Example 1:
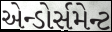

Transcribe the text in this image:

એન્ડોર્સમેન્ટ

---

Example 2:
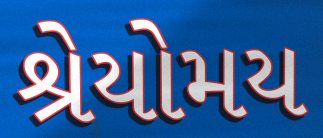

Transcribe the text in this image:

શ્રેયોમય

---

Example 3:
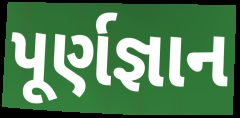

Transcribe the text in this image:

પૂર્ણજ્ઞાન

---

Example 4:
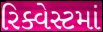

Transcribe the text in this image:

રિક્વેસ્ટમાં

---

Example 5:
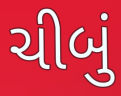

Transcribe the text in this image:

ચીબું